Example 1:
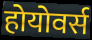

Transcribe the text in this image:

होयोवर्स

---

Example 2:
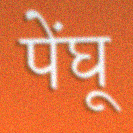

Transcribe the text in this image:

पेंघू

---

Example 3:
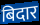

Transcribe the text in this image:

बिदार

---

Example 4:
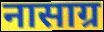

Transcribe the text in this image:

नासाग्र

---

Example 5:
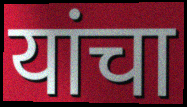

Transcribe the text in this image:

यांचा